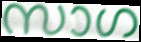
സാഗ